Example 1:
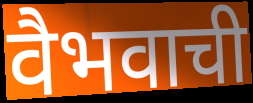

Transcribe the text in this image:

वैभवाची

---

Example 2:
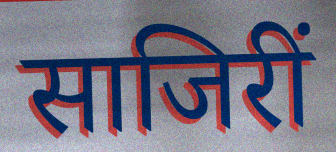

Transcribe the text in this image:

साजिरीं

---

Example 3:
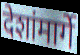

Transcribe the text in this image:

देशांमार्गे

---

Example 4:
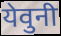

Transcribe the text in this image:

येवुनी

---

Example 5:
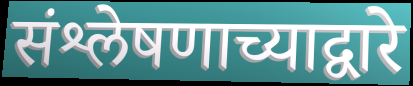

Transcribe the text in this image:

संश्लेषणाच्याद्वारे